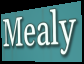
Mealy